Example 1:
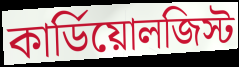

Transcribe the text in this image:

কার্ডিয়োলজিস্ট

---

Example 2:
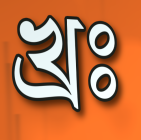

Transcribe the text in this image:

খ্রঃ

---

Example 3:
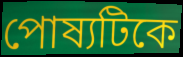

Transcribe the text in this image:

পোষ্যটিকে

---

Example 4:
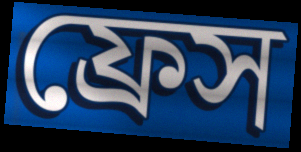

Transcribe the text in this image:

ফ্রেস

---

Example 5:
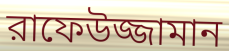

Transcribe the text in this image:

রাফেউজ্জামান